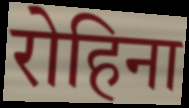
रोहिना